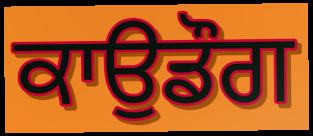
ਕਾਉਡੌਗ